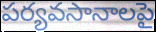
పర్యవసానాలపై